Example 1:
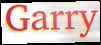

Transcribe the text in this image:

Garry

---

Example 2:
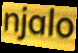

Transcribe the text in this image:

njalo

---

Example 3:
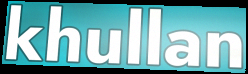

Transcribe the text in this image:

khullan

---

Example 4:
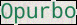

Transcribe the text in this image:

Opurbo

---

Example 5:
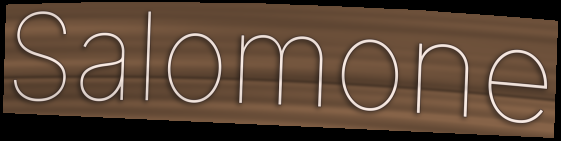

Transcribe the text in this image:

Salomone